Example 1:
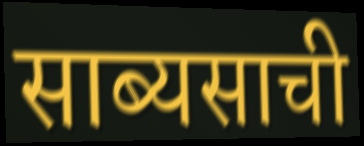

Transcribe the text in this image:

साब्यसाची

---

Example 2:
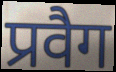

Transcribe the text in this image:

प्रवैग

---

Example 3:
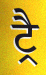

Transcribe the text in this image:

ट्रै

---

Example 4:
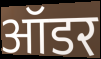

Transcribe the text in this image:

ऑडर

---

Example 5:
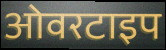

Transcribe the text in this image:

ओवरटाइप